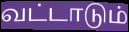
வட்டாடும்